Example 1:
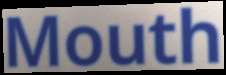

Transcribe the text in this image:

Mouth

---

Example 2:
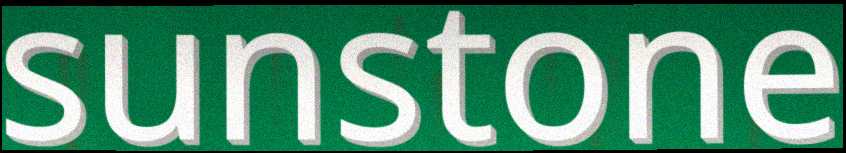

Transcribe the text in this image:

sunstone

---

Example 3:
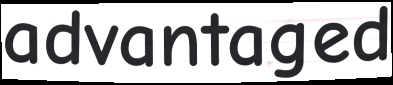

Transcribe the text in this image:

advantaged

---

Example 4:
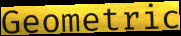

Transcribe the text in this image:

Geometric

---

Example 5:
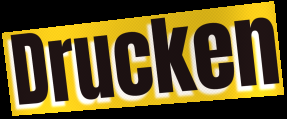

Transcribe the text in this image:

Drucken